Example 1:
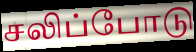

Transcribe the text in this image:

சலிப்போடு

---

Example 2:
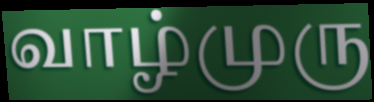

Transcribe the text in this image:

வாழ்முரு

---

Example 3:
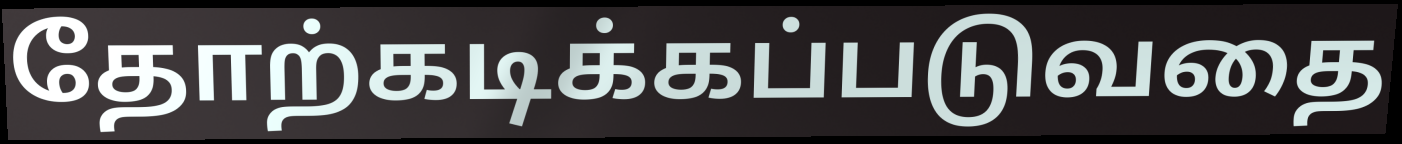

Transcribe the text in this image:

தோற்கடிக்கப்படுவதை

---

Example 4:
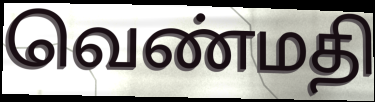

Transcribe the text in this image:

வெண்மதி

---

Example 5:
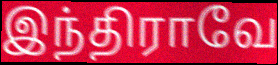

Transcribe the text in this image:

இந்திராவே